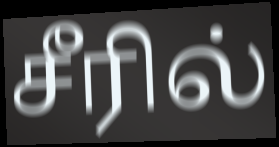
சீரில்